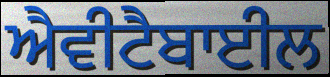
ਐਵੀਟੈਬਾਈਲ